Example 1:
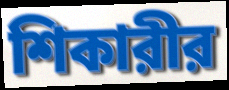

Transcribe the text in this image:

শিকারীর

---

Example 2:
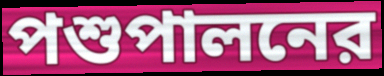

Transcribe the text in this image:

পশুপালনের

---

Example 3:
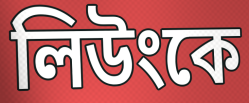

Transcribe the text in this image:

লিউংকে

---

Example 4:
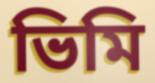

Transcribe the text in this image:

ভিমি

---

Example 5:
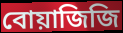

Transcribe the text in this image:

বোয়াজিজি